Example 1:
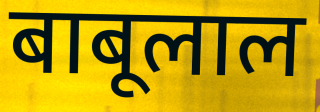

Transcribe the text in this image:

बाबूलाल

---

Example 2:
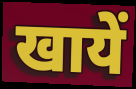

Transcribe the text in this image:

खायें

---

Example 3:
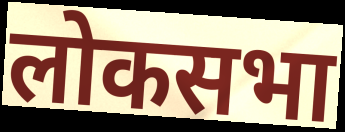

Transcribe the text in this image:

लोकसभा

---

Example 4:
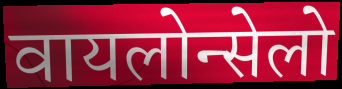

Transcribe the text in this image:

वायलोन्सेलो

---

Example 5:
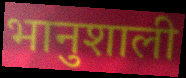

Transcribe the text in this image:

भानुशाली